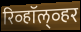
रिव्हॉल्व्हर